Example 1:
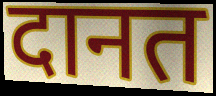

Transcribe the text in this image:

दानत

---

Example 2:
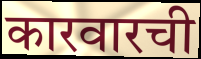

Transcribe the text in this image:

कारवारची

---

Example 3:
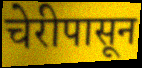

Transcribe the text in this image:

चेरीपासून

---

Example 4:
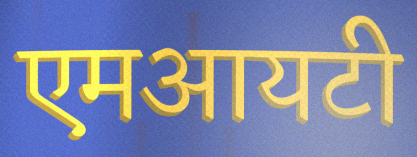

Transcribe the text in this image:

एमआयटी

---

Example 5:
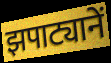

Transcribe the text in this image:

झपाट्यानें